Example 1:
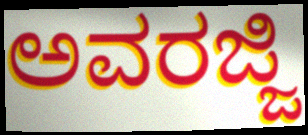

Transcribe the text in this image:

ಅವರಜ್ಜಿ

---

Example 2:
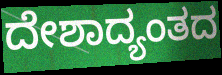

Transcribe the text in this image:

ದೇಶಾದ್ಯಂತದ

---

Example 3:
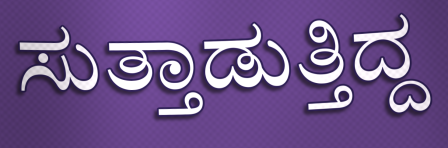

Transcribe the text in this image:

ಸುತ್ತಾಡುತ್ತಿದ್ದ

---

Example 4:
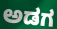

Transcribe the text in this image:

ಅಡಗ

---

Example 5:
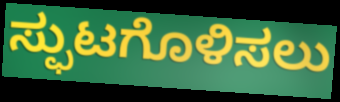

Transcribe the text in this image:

ಸ್ಫುಟಗೊಳಿಸಲು